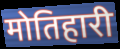
मोतिहारी